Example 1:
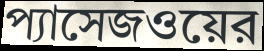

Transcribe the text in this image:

প্যাসেজওয়ের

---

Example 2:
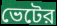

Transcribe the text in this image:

ভেটের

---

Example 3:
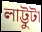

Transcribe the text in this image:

লাট্টুটা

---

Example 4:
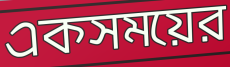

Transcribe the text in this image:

একসময়ের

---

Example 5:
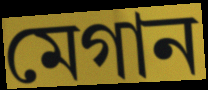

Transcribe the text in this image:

মেগান